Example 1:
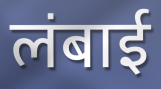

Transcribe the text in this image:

लंबाई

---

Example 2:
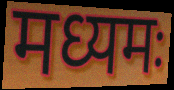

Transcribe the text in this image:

मध्यमः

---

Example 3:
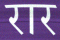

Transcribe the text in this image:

रार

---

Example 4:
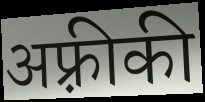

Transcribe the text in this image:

अफ़्रीकी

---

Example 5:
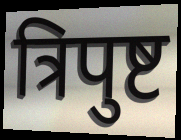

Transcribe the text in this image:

त्रिपुष्ट